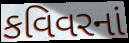
કવિવરનાં